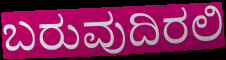
ಬರುವುದಿರಲಿ